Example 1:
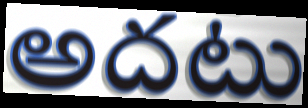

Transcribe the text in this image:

అదటు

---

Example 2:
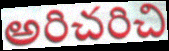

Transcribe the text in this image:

అరిచరిచి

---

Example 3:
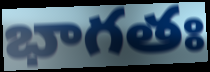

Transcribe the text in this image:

భాగతః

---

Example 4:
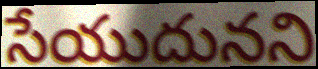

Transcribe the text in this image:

సేయుదునని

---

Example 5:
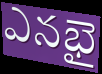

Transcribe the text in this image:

ఎనభై